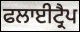
ਫਲਾਈਟ੍ਰੈਪ